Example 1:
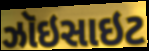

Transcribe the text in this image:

ઝૉઇસાઇટ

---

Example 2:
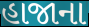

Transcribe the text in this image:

હાજાના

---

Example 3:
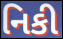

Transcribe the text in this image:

નિકી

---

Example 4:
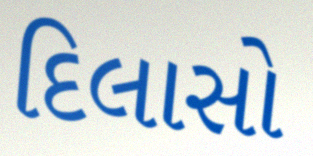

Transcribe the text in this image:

દિલાસો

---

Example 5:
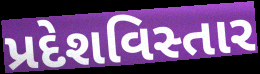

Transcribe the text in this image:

પ્રદેશવિસ્તાર